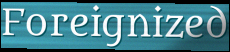
Foreignized